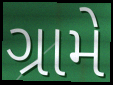
ગ્રામે